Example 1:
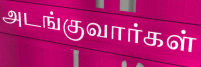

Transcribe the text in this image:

அடங்குவார்கள்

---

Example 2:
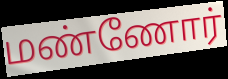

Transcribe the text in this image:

மண்ணோர்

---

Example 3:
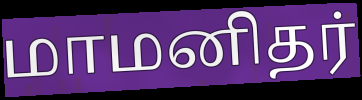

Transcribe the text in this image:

மாமனிதர்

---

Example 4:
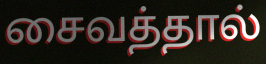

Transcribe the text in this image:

சைவத்தால்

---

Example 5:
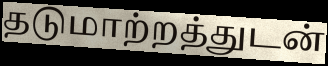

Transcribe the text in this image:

தடுமாற்றத்துடன்